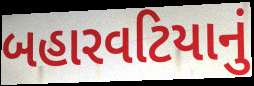
બહારવટિયાનું